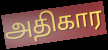
அதிகார